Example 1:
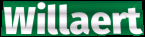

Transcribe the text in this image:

Willaert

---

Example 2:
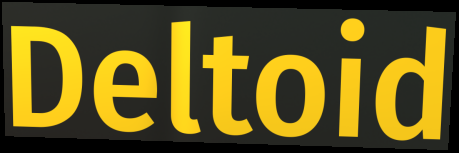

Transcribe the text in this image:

Deltoid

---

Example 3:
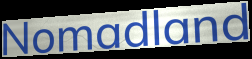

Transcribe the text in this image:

Nomadland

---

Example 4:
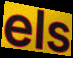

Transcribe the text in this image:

els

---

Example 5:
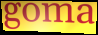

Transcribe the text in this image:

goma